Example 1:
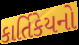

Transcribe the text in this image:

કાર્તિકેયનો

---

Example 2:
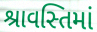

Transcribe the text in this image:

શ્રાવસ્તિમાં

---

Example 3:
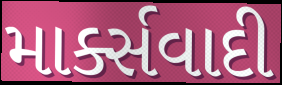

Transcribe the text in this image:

માર્ક્સવાદી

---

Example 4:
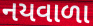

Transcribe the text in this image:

નયવાળા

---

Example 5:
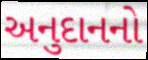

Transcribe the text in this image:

અનુદાનનો